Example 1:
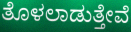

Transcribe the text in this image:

ತೊಳಲಾಡುತ್ತೇವೆ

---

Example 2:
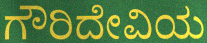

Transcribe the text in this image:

ಗೌರಿದೇವಿಯ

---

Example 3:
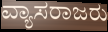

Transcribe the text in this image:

ವ್ಯಾಸರಾಜರು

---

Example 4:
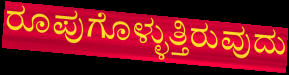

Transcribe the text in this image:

ರೂಪುಗೊಳ್ಳುತ್ತಿರುವುದು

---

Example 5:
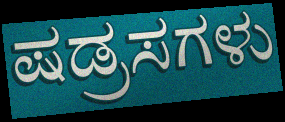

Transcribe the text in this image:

ಷಡ್ರಸಗಳು